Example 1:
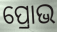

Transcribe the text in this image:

ପ୍ରୋଭ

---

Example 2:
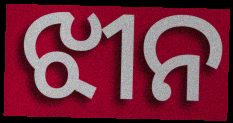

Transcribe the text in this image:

ଝୀନ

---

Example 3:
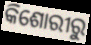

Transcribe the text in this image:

କିଶୋରୀରୁ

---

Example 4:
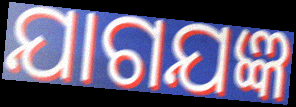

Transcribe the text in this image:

ଯାଗଯଜ୍ଞ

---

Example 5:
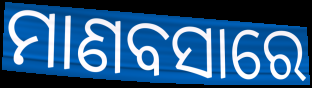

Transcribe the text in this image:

ମାଣବସାରେ